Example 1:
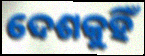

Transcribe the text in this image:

ଦେଶକୁହିଁ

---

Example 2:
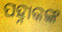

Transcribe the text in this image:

ପହ୍ନାକଙ୍କ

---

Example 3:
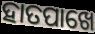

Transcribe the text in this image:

ହାତପାଖେ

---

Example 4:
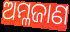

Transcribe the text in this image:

ଅମ୍ଳଜାଣ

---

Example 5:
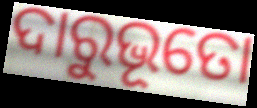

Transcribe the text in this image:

ଦାରୁଭୂତୋ